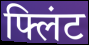
फ्लिंट